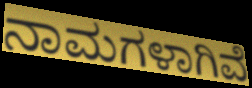
ನಾಮಗಳಾಗಿವೆ